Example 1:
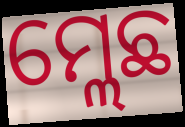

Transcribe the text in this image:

ମ୍ଲେଛ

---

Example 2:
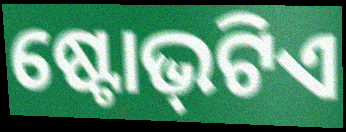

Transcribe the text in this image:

ଷ୍ଟୋଭ୍‌ଟିଏ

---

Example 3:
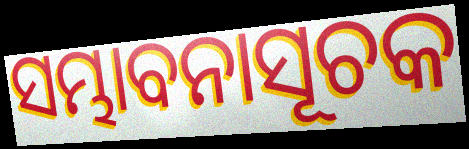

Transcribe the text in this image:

ସମ୍ଭାବନାସୂଚକ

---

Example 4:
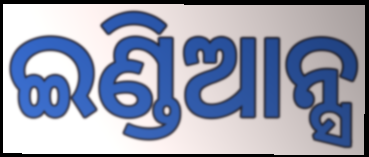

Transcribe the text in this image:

ଇଣ୍ଡିଆନ୍ସ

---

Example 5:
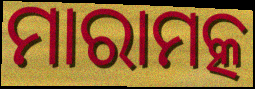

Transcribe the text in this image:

ମାରାମତ୍କ